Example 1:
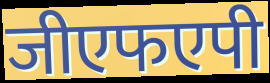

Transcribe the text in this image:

जीएफएपी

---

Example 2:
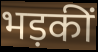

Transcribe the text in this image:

भड़कीं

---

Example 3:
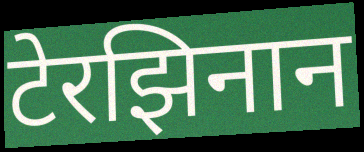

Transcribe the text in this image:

टेरझिनान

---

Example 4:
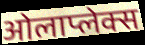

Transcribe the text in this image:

ओलाप्लेक्स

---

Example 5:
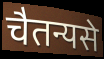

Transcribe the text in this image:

चैतन्यसे